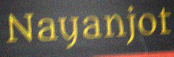
Nayanjot